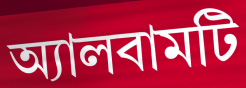
অ্যালবামটি